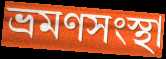
ভ্রমণসংস্থা